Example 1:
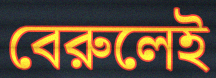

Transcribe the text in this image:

বেরুলেই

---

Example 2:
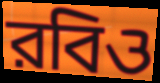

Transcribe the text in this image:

রবিও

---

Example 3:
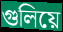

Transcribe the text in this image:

গুলিয়ে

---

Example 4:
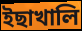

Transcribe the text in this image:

ইছাখালি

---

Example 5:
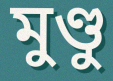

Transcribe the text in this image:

মুণ্ডু